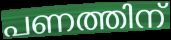
പണത്തിന്